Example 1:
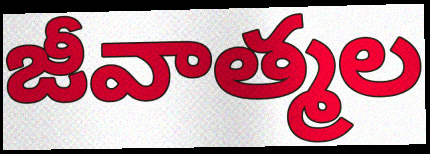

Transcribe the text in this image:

జీవాత్మల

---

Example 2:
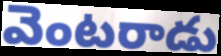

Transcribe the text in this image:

వెంటరాడు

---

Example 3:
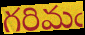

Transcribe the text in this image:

గరిమఁ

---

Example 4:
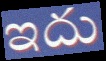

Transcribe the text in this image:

ఇదు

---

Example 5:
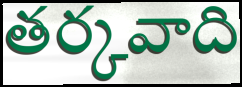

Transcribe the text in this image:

తర్కవాది